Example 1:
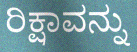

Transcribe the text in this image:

ರಿಕ್ಷಾವನ್ನು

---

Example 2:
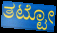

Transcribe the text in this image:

ತಟ್ಟೋ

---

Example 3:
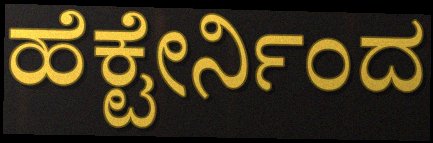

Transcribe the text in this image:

ಹೆಕ್ಟೇರ್ನಿಂದ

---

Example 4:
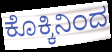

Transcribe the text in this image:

ಕೊಕ್ಕಿನಿಂದ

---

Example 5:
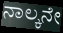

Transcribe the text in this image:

ನಾಲ್ಕನೇ